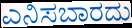
ಎನಿಸಬಾರದು